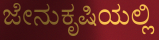
ಜೇನುಕೃಷಿಯಲ್ಲಿ